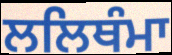
ਲਲਿਥੰਮਾ